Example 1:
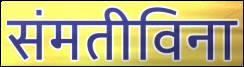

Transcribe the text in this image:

संमतीविना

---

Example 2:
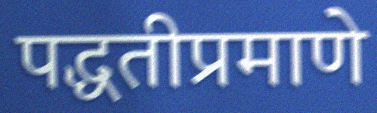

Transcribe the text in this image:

पद्धतीप्रमाणे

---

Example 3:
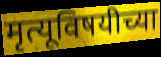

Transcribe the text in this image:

मृत्यूविषयीच्या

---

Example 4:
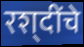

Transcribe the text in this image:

रश्दींचे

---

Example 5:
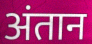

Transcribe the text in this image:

अंतान